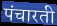
पंचारती